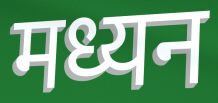
मध्यन